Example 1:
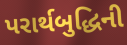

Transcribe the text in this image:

પરાર્થબુદ્ધિની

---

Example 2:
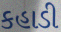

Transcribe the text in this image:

કહાડી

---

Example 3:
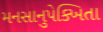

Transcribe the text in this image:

મનસાનુપેક્ખિતા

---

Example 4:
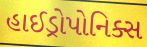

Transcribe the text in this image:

હાઈડ્રોપોનિક્સ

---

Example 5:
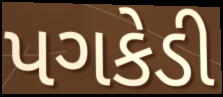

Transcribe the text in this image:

પગકેડી